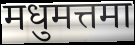
मधुमत्तमा